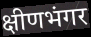
क्षीणभंगर